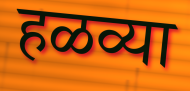
हळव्या